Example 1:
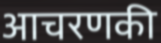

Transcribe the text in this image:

आचरणकी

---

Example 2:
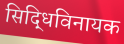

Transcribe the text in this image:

सिद्धिविनायक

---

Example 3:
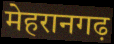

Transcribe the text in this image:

मेहरानगढ़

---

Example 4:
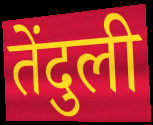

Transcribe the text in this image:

तेंदुली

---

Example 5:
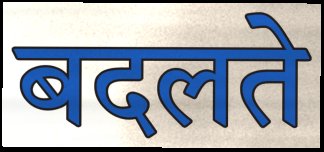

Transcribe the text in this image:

बदलते